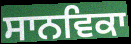
ਸਾਨਵਿਕਾ